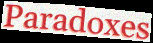
Paradoxes